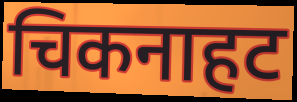
चिकनाहट